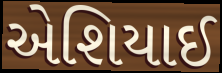
એશિયાઈ